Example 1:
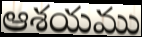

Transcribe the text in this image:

ఆశయము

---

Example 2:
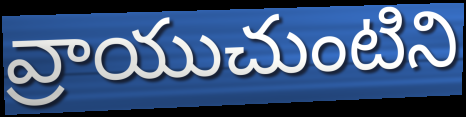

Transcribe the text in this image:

వ్రాయుచుంటిని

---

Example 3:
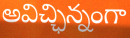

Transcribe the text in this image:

అవిచ్ఛిన్నంగా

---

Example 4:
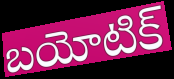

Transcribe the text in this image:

బయోటిక్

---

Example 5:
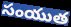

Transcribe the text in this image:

సంయుత